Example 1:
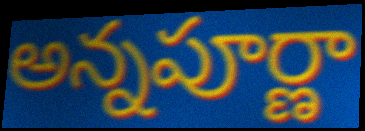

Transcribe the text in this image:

అన్నపూర్ణా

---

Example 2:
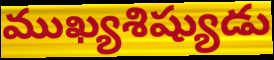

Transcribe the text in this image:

ముఖ్యశిష్యుడు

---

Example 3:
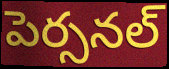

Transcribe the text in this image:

పెర్సనల్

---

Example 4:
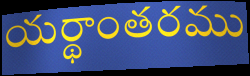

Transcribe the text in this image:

యర్థాంతరము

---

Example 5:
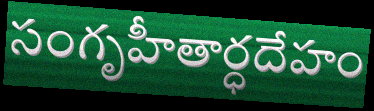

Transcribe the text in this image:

సంగృహీతార్ధదేహం